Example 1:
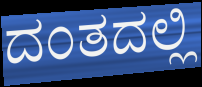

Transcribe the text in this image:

ದಂತದಲ್ಲಿ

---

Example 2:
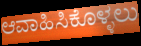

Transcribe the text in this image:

ಆವಾಹಿಸಿಕೊಳ್ಳಲು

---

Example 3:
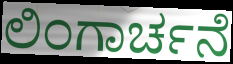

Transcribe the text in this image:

ಲಿಂಗಾರ್ಚನೆ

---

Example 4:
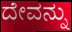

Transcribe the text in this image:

ದೇವನ್ನು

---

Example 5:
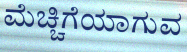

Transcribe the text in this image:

ಮೆಚ್ಚಿಗೆಯಾಗುವ